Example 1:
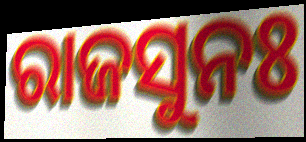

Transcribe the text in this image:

ରାଜସୁନଃ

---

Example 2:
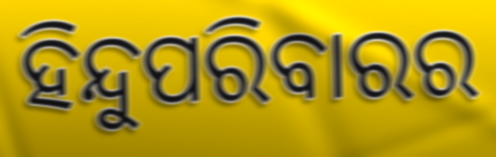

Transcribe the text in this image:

ହିନ୍ଦୁପରିବାରର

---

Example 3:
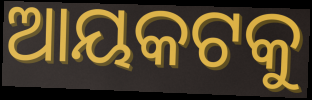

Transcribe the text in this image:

ଆୟକଟକୁ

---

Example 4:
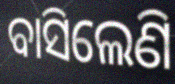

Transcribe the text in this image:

ବାସିଲେଣି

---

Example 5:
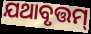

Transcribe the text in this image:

ଯଥାବୃତ୍ତମ୍